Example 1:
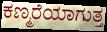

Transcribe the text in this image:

ಕಣ್ಮರೆಯಾಗುತ್ತ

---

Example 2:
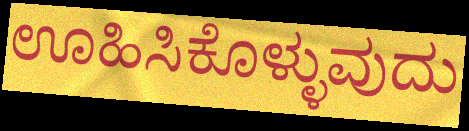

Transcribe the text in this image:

ಊಹಿಸಿಕೊಳ್ಳುವುದು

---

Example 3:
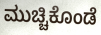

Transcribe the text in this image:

ಮುಚ್ಚಿಕೊಂಡೆ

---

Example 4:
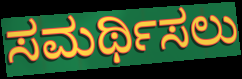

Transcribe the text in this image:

ಸಮರ್ಥಿಸಲು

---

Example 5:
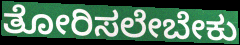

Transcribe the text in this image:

ತೋರಿಸಲೇಬೇಕು